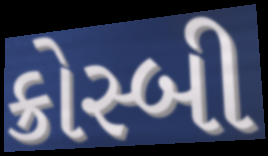
ક્રોસ્બી